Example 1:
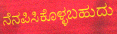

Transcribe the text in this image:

ನೆನಪಿಸಿಕೊಳ್ಳಬಹುದು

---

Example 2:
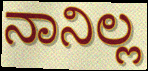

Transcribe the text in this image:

ನಾನಿಲ್ಲ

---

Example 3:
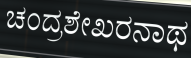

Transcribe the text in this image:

ಚಂದ್ರಶೇಖರನಾಥ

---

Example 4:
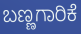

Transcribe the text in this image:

ಬಣ್ಣಗಾರಿಕೆ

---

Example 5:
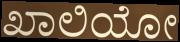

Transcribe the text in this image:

ಖಾಲಿಯೋ